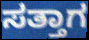
ಸತ್ತಾಗ